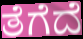
ತೆಗೆದೆ